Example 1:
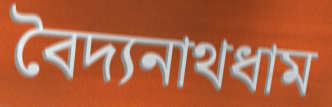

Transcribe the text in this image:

বৈদ্যনাথধাম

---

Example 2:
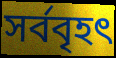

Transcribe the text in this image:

সর্ববৃহৎ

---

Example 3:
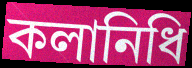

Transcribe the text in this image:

কলানিধি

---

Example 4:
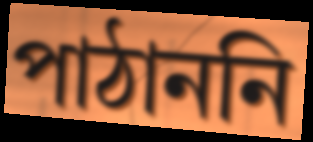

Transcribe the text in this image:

পাঠাননি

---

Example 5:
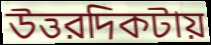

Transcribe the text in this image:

উত্তরদিকটায়